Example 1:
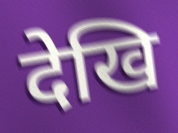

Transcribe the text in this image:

देखि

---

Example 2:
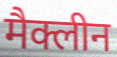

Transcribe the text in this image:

मैक्लीन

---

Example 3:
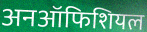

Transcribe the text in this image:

अनऑफिशियल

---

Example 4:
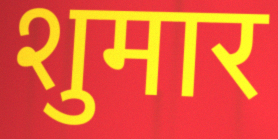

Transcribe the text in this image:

शुमार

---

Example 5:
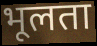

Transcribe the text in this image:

भूलता